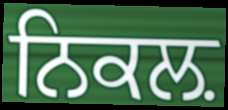
ਨਿਕਲ਼